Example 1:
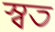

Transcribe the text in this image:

স্বত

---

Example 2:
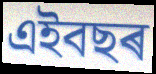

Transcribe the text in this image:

এইবছৰ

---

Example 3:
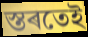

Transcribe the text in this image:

স্তৰতেই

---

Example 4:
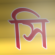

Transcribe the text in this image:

সি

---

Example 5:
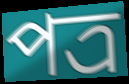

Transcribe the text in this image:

পত্ৰ